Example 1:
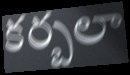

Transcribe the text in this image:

కర్బలా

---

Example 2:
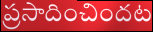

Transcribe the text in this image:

ప్రసాదించిందట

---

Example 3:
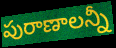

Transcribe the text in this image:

పురాణాలన్నీ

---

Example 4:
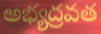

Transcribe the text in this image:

అభ్యద్రవత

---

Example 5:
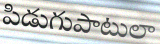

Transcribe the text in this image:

పిడుగుపాటులా